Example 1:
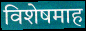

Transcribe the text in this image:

विशेषमाह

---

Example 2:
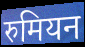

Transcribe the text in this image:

रुमियन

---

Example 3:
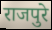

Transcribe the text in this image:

राजपुरे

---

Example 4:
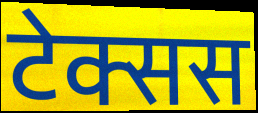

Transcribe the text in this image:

टेक्सस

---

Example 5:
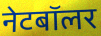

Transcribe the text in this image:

नेटबॉलर